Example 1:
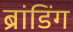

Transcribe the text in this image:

ब्रांडिंग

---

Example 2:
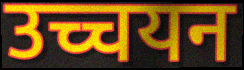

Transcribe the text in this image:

उच्चयन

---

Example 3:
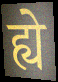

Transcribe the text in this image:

ह्ये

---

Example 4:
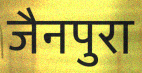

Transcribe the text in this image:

जैनपुरा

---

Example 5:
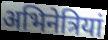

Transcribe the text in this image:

अभिनेत्रियां